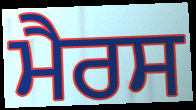
ਮੈਰਸ